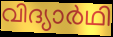
വിദ്യാർഥി